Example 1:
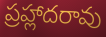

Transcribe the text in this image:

ప్రహ్లాదరావు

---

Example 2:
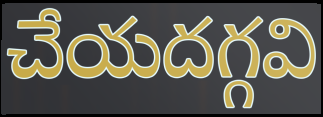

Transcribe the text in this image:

చేయదగ్గవి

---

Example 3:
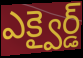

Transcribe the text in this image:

ఎక్వైర్డ్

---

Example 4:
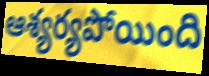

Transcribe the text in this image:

ఆశ్యర్యపోయింది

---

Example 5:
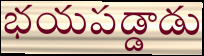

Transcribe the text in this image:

భయపడ్డాడు